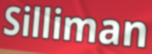
Silliman